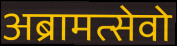
अब्रामत्सेवो